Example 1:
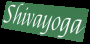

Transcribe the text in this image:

Shivayoga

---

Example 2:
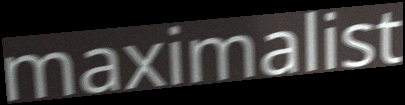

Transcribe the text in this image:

maximalist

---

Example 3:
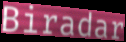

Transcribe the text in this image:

Biradar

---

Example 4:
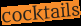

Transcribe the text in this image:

cocktails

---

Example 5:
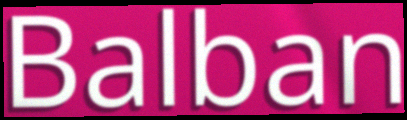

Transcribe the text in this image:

Balban